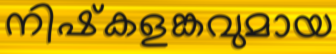
നിഷ്‌കളങ്കവുമായ